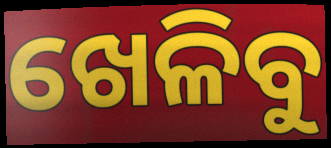
ଖେଳିବୁ